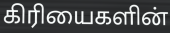
கிரியைகளின்